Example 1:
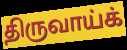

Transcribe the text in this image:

திருவாய்க்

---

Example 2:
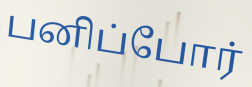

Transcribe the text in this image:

பனிப்போர்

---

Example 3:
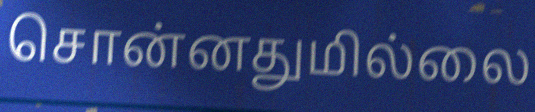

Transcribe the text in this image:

சொன்னதுமில்லை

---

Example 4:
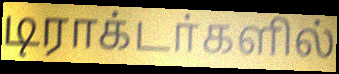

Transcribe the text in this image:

டிராக்டர்களில்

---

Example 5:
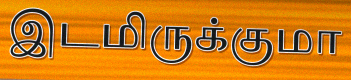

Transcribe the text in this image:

இடமிருக்குமா